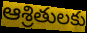
ఆశ్రితులకు